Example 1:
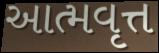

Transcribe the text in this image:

આત્મવૃત્ત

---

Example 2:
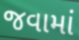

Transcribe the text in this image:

જવામાં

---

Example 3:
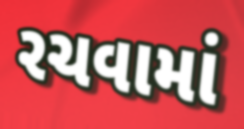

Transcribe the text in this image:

રચવામાં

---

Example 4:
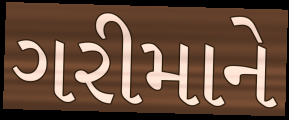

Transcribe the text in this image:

ગરીમાને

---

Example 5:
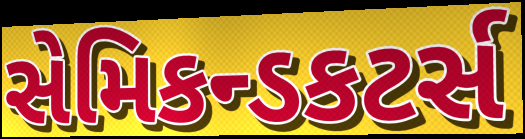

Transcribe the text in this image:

સેમિકન્ડકટર્સ